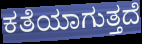
ಕತೆಯಾಗುತ್ತದೆ